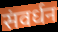
संवर्धन